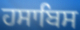
ਹਸਾਬਿਸ